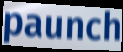
paunch